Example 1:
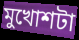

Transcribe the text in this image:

মুখোশটা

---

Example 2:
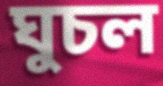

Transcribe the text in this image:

ঘুচল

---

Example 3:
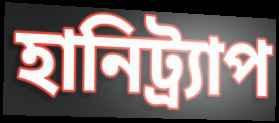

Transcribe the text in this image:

হানিট্র্যাপ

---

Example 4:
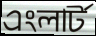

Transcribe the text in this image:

এংলার্ট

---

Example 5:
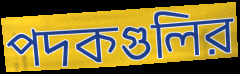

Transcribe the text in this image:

পদকগুলির